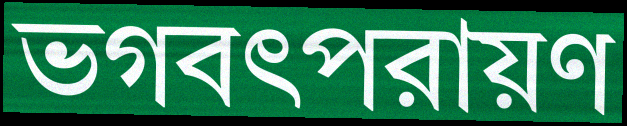
ভগবৎপরায়ণ